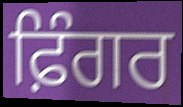
ਫ਼ਿੰਗਰ